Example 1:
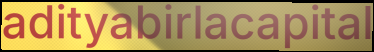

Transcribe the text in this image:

adityabirlacapital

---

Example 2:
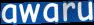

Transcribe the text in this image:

awaru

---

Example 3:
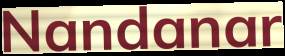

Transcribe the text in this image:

Nandanar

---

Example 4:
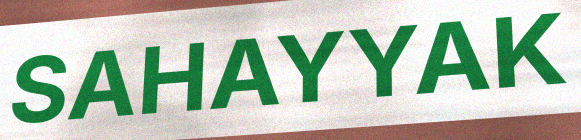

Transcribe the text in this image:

SAHAYYAK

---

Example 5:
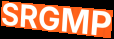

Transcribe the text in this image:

SRGMP